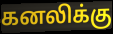
கனலிக்கு